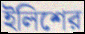
ইলিশের